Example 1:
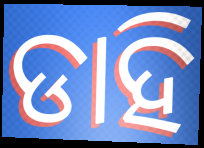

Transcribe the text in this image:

ଡାହି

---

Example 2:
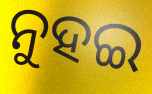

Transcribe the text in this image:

ନୁହଇ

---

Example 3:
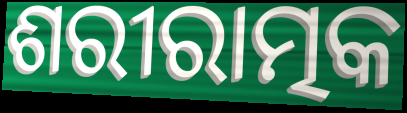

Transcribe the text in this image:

ଶରୀରାତ୍ମକ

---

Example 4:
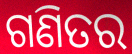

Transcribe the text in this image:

ଗଣିତର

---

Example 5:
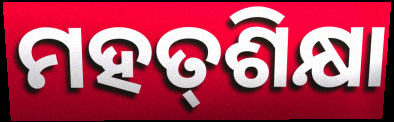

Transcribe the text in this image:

ମହତ୍‌ଶିକ୍ଷା